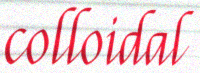
colloidal